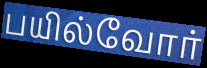
பயில்வோர்